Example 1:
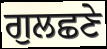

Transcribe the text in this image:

ਗੁਲਛਣੇ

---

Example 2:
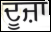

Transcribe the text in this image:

ਦੂਜ਼ਾ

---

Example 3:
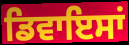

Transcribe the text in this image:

ਡਿਵਾਇਸਾਂ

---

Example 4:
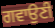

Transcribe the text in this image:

ਗਵਾਉਣੀ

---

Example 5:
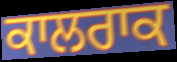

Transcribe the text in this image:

ਕਾਲਰਾਕ